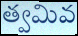
త్వమివ